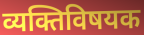
व्यक्तिविषयक